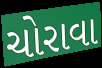
ચોરાવા